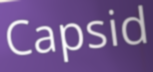
Capsid